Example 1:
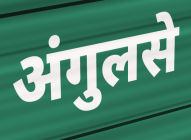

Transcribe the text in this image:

अंगुलसे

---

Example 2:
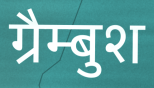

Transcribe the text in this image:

ग्रैम्बुश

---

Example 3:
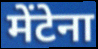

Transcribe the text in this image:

मेंटेना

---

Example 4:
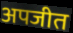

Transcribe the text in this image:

अपजीत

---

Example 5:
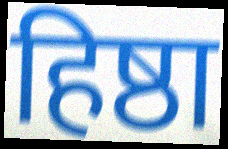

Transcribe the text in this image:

हिष्ठा